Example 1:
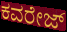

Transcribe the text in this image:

ಕವರೇಜ್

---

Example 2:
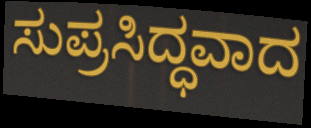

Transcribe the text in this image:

ಸುಪ್ರಸಿದ್ಧವಾದ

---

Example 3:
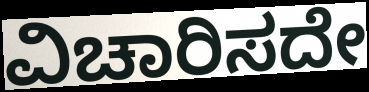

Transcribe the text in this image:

ವಿಚಾರಿಸದೇ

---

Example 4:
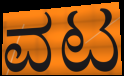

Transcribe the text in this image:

ವಟ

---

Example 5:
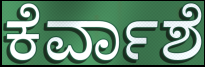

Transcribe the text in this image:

ಕೆರ್ವಾಶೆ